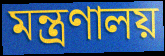
মন্ত্রণালয়